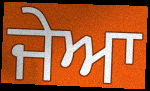
ਜੇਆ